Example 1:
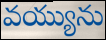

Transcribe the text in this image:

వయ్యును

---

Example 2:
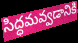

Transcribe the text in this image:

సిద్ధమవ్వడానికి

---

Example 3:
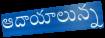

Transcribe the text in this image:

ఆదాయాలున్న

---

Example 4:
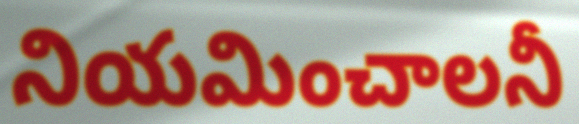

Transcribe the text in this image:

నియమించాలనీ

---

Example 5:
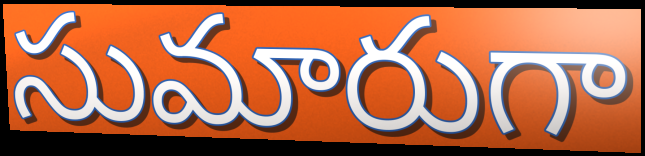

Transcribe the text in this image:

సుమారుగా